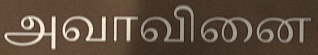
அவாவினை